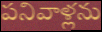
పనివాళ్లను